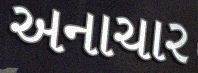
અનાચાર